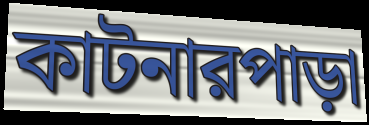
কাটনারপাড়া